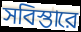
সবিস্তারে